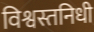
विश्वस्तनिधी